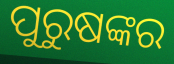
ପୁରୁଷଙ୍କର